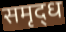
समृद्ध